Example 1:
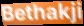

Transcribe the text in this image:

Bethakji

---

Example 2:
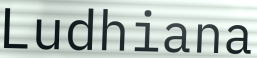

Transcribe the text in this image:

Ludhiana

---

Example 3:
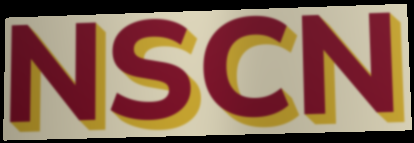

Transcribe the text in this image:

NSCN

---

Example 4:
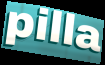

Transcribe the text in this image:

pilla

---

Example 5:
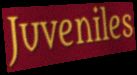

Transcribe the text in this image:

Juveniles